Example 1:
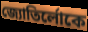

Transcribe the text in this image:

জ্যোতির্লোকে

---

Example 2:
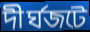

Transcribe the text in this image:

দীর্ঘজটে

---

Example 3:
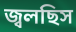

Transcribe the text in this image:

জ্বলছিস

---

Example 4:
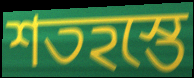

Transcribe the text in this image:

শতহস্তে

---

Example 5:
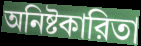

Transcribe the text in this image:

অনিষ্টকারিতা